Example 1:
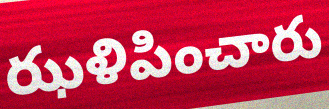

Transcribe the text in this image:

ఝళిపించారు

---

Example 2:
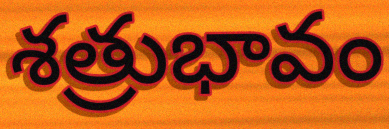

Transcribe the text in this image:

శత్రుభావం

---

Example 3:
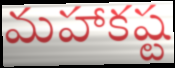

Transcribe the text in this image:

మహాకష్ట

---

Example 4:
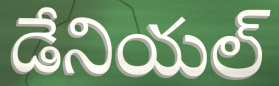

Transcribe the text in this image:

డేనియల్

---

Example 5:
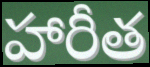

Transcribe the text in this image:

హారీత